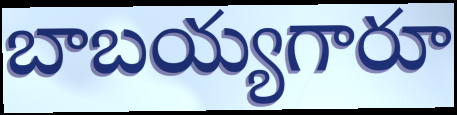
బాబయ్యగారూ